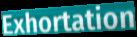
Exhortation